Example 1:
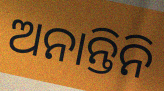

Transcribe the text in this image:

ଅନାନ୍ତିନି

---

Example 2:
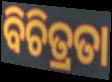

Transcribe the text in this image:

ବିଚିତ୍ରତା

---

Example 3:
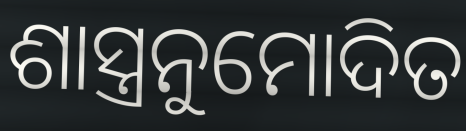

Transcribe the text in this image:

ଶାସ୍ତ୍ରନୁମୋଦିତ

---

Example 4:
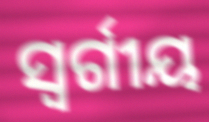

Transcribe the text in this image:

ସ୍ୱର୍ଗୀୟ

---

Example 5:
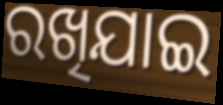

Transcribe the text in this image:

ରଖିଯାଇ